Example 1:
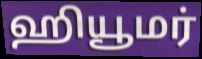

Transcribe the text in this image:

ஹியூமர்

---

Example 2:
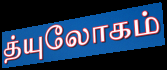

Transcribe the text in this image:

த்யுலோகம்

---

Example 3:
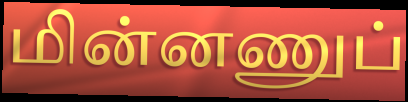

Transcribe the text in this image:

மின்னணுப்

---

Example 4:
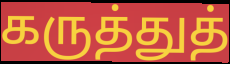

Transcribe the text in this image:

கருத்துத்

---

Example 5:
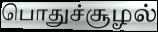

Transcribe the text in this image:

பொதுச்சூழல்